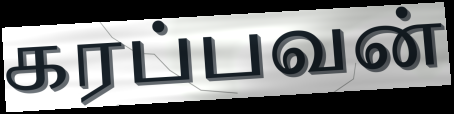
கரப்பவன்